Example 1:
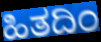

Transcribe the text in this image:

ಹಿತದಿಂ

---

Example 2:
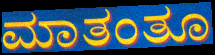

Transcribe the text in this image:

ಮಾತಂತೂ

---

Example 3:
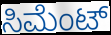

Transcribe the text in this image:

ಸಿಮೆಂಟ್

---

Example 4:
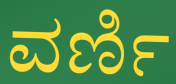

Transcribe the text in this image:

ವರ್ಣಿ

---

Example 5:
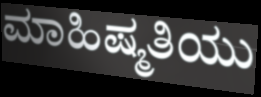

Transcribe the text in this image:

ಮಾಹಿಷ್ಮತಿಯು